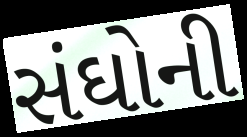
સંઘોની